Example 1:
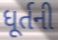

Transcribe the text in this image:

ધૂર્તની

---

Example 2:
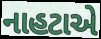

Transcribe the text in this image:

નાહટાએ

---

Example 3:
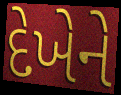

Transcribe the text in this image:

દેખેને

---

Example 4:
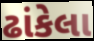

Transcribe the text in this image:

ઢાંકેલા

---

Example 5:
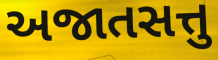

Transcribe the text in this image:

અજાતસત્તુ